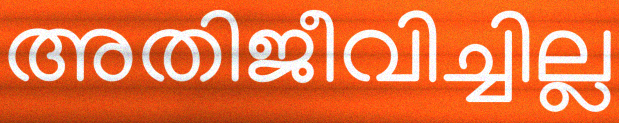
അതിജീവിച്ചില്ല